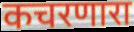
कचरणारा